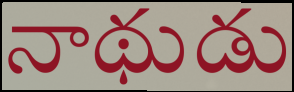
నాథుడు